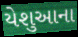
યેશુઆના